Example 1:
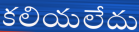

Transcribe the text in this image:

కలియలేదు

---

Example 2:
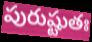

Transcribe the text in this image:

పురుష్టుతః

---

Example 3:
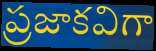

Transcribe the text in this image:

ప్రజాకవిగా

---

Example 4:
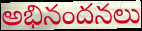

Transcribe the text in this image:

అభినందనలు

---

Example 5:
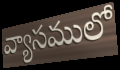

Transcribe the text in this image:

వ్యాసములో